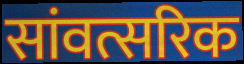
सांवत्सरिक